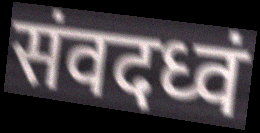
संवदध्वं